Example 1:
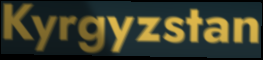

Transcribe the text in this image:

Kyrgyzstan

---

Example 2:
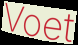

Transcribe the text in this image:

Voet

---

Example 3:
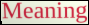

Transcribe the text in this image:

Meaning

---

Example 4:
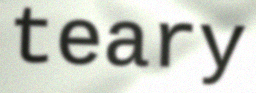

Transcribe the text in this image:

teary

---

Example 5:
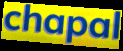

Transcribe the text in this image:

chapal